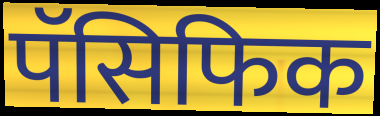
पॅसिफिक